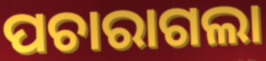
ପଚାରାଗଲା